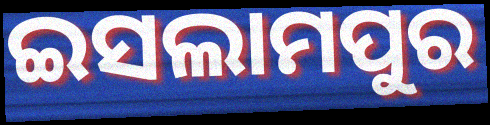
ଇସଲାମପୁର